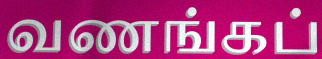
வணங்கப்